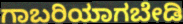
ಗಾಬರಿಯಾಗಬೇಡಿ